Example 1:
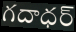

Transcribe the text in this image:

గదాధర్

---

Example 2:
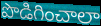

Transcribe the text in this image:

పొడిగించాలా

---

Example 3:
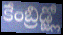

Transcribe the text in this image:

కేంబ్రిడ్జ్లో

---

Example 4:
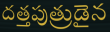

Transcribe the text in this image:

దత్తపుత్రుడైన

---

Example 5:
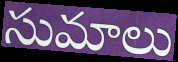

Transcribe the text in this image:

సుమాలు